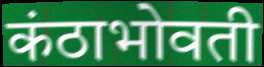
कंठाभोवती